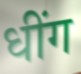
धींग